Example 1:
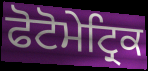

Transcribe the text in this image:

ਫੋਟੋਮੇਟ੍ਰਿਕ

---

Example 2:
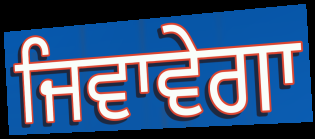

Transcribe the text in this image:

ਜਿਵਾਵੇਗਾ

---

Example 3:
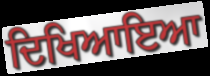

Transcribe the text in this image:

ਦਿਖਿਆਇਆ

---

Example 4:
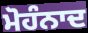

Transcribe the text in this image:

ਮੋਹੰਨਾਦ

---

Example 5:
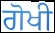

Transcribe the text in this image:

ਗੋਖੀ